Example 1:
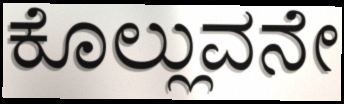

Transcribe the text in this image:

ಕೊಲ್ಲುವನೇ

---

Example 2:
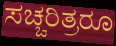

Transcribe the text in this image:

ಸಚ್ಚರಿತ್ರರೂ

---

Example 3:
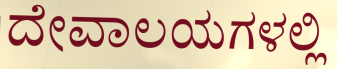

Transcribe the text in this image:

ದೇವಾಲಯಗಳಲ್ಲಿ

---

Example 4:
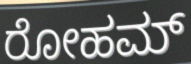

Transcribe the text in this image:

ರೋಹಮ್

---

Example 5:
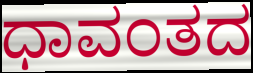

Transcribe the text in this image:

ಧಾವಂತದ